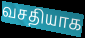
வசதியாக